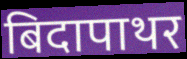
बिदापाथर